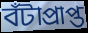
বঁটাপ্ৰাপ্ত